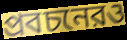
প্রবচনেরও